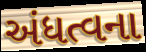
અંધત્વના